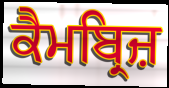
ਕੈਮਬ੍ਰਿਜ਼